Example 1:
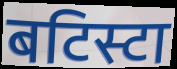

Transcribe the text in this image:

बटिस्टा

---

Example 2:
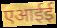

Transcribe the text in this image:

एआईई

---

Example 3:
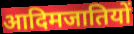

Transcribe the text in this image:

आदिमजातियों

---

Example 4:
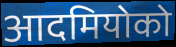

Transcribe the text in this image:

आदमियोको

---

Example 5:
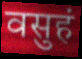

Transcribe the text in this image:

वसुहं